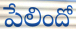
పేలిందో